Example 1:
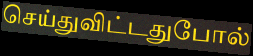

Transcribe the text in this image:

செய்துவிட்டதுபோல்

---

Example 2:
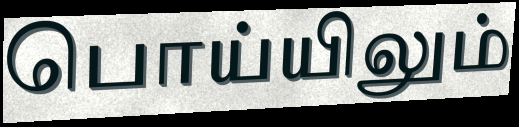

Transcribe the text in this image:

பொய்யிலும்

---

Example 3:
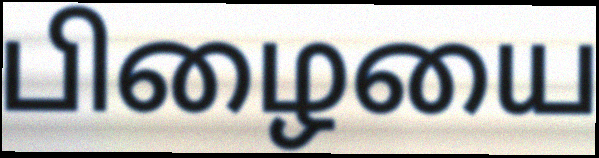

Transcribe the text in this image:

பிழையை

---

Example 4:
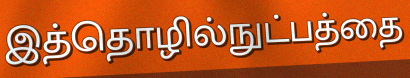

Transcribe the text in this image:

இத்தொழில்நுட்பத்தை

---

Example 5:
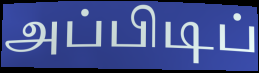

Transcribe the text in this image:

அப்பிடிப்